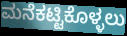
ಮನೆಕಟ್ಟಿಕೊಳ್ಳಲು